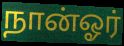
நான்ஓர்